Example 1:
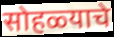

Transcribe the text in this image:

सोहळ्याचे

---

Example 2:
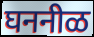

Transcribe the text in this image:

घननीळ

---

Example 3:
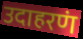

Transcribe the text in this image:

उदाहरणं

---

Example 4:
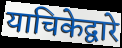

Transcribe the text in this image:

याचिकेद्वारे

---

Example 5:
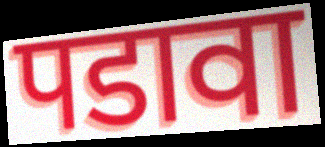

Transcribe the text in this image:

पडावा